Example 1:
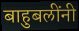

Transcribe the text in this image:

बाहुबलींनी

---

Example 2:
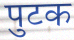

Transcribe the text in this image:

पुटक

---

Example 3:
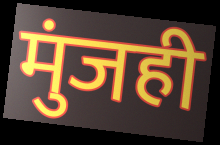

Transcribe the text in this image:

मुंजही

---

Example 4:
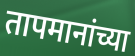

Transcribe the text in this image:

तापमानांच्या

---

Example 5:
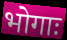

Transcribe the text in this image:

भोगाः